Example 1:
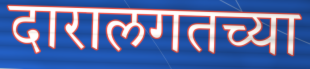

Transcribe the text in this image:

दारालगतच्या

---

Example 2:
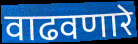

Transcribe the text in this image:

वाढवणारे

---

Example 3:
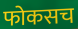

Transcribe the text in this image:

फोकसच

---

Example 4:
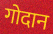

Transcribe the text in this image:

गोदान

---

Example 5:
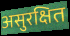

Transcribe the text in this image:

असुरक्षित